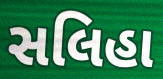
સલિહા